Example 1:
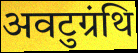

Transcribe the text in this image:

अवटुग्रंथि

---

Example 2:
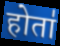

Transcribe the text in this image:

होता॑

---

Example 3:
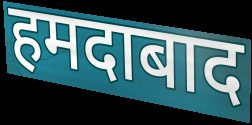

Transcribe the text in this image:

हमदाबाद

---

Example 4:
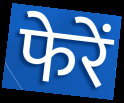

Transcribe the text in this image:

फेरें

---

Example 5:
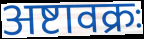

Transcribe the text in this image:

अष्टावक्रः